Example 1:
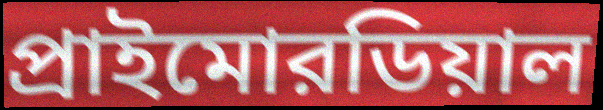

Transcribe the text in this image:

প্রাইমোরডিয়াল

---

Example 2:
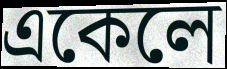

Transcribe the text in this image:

একেলে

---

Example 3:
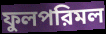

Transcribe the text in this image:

ফুলপরিমল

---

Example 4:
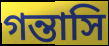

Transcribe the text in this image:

গন্তাসি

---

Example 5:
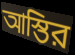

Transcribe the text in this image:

আস্তির